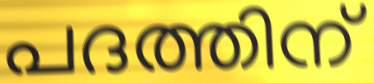
പദത്തിന്